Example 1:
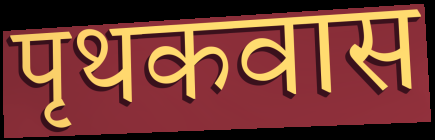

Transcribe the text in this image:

पृथकवास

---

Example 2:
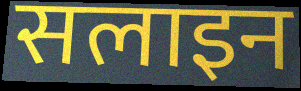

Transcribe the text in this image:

सलाइन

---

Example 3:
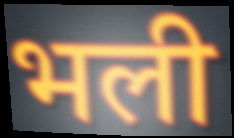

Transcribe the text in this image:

भली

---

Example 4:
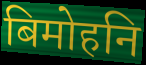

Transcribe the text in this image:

बिमोहनि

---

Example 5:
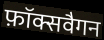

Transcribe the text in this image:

फ़ॉक्सवैगन